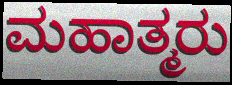
ಮಹಾತ್ಮರು